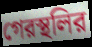
গেরস্থলির